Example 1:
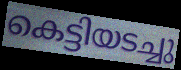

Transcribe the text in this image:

കെട്ടിയടച്ചു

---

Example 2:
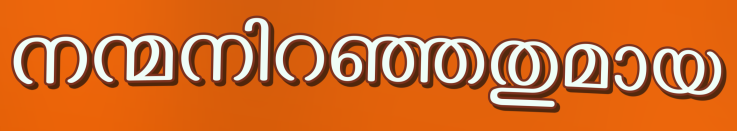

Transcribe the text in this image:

നന്മനിറഞ്ഞതുമായ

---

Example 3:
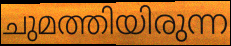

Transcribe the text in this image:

ചുമത്തിയിരുന്ന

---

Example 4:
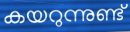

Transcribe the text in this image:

കയറുന്നുണ്ട്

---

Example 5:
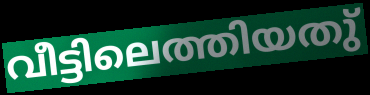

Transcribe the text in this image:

വീട്ടിലെത്തിയതു്